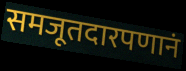
समजूतदारपणानं